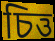
চিত্ত